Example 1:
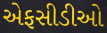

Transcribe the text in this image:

એફસીડીઓ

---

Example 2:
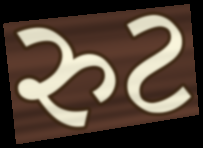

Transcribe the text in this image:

રુટ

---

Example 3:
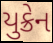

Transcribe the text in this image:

યુક્રેન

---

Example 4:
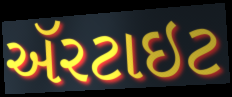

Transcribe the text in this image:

ઍરટાઇટ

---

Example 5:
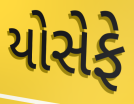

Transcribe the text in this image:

યોસેફે